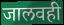
जालवही